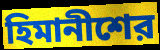
হিমানীশের